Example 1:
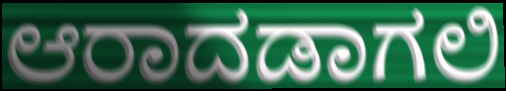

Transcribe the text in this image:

ಆರಾದಡಾಗಲಿ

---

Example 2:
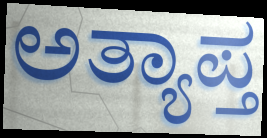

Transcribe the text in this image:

ಅತ್ಯಾಪ್ತ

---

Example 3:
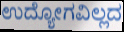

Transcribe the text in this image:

ಉದ್ಯೋಗವಿಲ್ಲದ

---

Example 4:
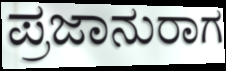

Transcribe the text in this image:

ಪ್ರಜಾನುರಾಗ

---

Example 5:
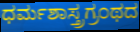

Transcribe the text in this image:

ಧರ್ಮಶಾಸ್ತ್ರಗ್ರಂಥದ